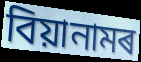
বিয়ানামৰ